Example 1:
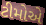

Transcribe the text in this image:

ટીમોએ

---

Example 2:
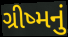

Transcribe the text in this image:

ગ્રીષ્મનું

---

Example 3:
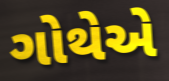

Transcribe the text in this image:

ગોથેએ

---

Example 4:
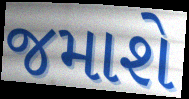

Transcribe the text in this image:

જમાશે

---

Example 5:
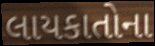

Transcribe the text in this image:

લાયકાતોના